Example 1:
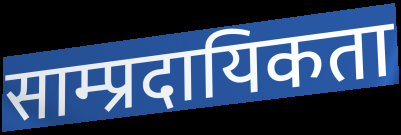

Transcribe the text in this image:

साम्प्रदायिकता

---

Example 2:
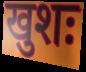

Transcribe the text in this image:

खुशः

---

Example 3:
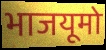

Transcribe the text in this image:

भाजयूमो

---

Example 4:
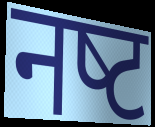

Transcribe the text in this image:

नष्‍ट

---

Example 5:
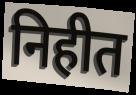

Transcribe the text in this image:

निहीत